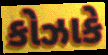
કોઝાકે